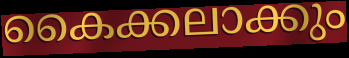
കൈക്കലാക്കും